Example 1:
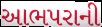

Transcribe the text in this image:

આભપરાની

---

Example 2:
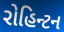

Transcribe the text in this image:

રોહિન્ટન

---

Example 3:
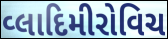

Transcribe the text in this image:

વ્લાદિમીરોવિચ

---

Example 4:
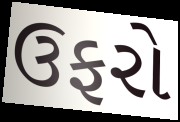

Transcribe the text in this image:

ઉફરો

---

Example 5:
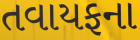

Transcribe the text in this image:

તવાયફના